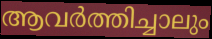
ആവർത്തിച്ചാലും